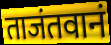
ताजंतवानं